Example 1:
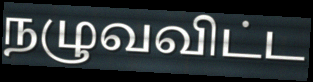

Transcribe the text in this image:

நழுவவிட்ட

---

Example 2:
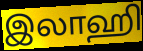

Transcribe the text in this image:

இலாஹி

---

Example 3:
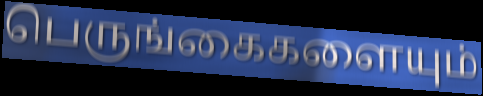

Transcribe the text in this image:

பெருங்கைகளையும்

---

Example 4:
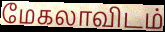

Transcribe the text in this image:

மேகலாவிடம்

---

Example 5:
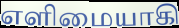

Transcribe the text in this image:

எளிமையாகி